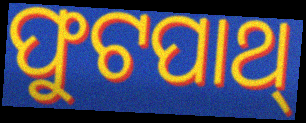
ଫୁଟପାଥ୍